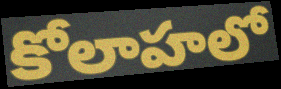
కోలాహలో